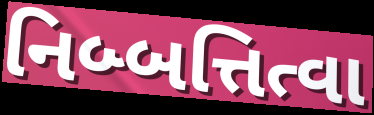
નિબ્બત્તિત્વા